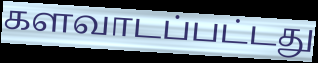
களவாடப்பட்டது